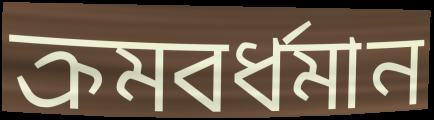
ক্ৰমবৰ্ধমান